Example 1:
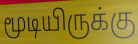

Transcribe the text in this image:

மூடியிருக்கு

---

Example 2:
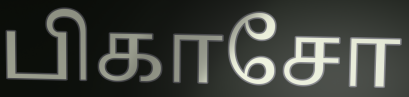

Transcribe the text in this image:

பிகாசோ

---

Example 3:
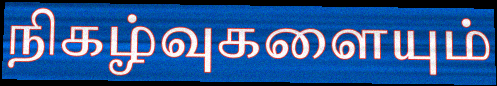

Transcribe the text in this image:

நிகழ்வுகளையும்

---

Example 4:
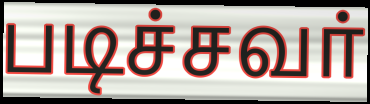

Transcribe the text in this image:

படிச்சவர்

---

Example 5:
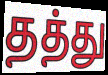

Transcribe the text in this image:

தத்து